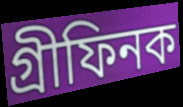
গ্ৰীফিনক